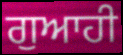
ਗੁਆਹੀ